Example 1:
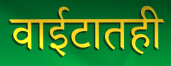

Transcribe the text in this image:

वाईटातही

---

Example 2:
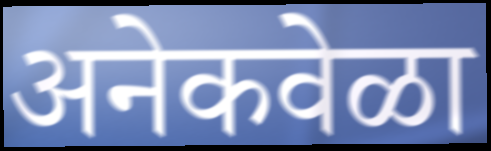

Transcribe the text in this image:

अनेकवेळा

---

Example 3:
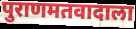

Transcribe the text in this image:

पुराणमतवादाला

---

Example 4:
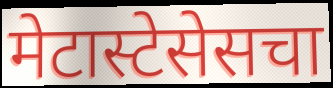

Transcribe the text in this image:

मेटास्टेसेसचा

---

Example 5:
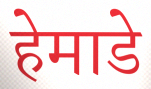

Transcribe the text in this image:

हेमाडे